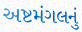
અષ્ટમંગલનું